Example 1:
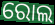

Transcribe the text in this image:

ରୋଲ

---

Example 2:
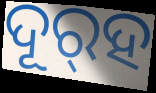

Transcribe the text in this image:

ଦୂର୍‌ହ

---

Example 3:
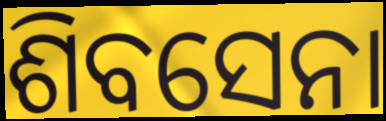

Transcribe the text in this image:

ଶିବସେନା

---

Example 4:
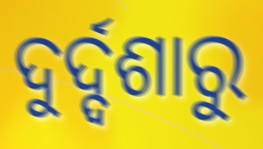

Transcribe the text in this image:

ଦୁର୍ଦ୍ଦଶାରୁ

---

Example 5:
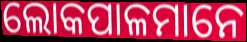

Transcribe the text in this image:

ଲୋକପାଳମାନେ